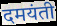
दमयंती